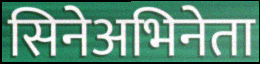
सिनेअभिनेता